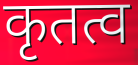
कृतत्व